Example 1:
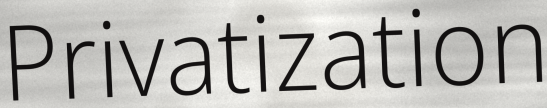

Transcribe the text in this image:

Privatization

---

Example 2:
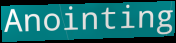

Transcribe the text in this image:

Anointing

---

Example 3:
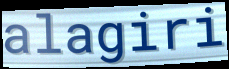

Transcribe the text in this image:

alagiri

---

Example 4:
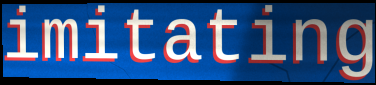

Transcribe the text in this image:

imitating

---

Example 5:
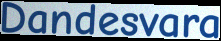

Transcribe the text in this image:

Dandesvara